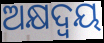
ଅକ୍ଷଦ୍ବୟ